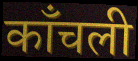
काँचली